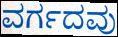
ವರ್ಗದವು